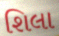
શિલા